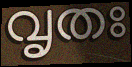
വൃതഃ